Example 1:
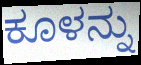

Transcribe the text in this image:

ಕೂಳನ್ನು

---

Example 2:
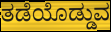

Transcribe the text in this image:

ತಡೆಯೊಡ್ಡುವ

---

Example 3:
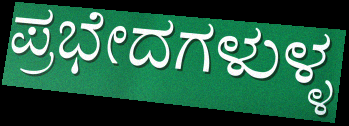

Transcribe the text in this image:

ಪ್ರಭೇದಗಳುಳ್ಳ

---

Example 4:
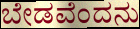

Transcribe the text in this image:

ಬೇಡವೆಂದನು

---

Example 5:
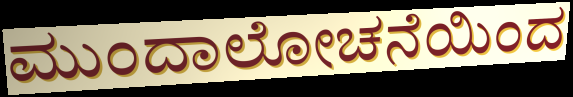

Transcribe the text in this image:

ಮುಂದಾಲೋಚನೆಯಿಂದ